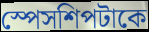
স্পেসশিপটাকে